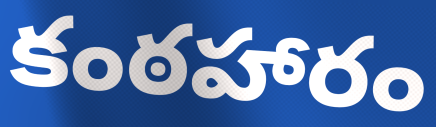
కంఠహారం